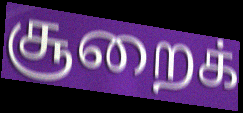
சூறைக்